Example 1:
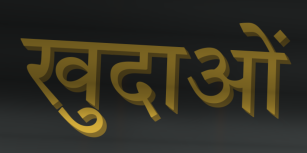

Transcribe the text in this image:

खुदाओं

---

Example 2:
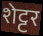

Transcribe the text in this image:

शेट्टर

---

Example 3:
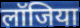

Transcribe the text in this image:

लॉजिया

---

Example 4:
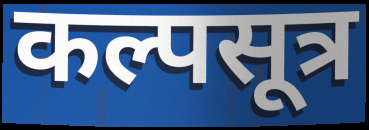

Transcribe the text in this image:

कल्पसूत्र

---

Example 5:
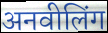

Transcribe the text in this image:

अनवीलिंग